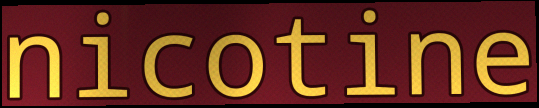
nicotine